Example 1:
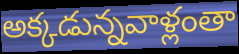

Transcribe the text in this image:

అక్కడున్నవాళ్లంతా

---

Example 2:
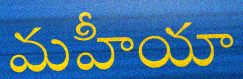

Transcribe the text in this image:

మహీయా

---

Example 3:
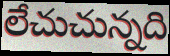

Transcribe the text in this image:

లేచుచున్నది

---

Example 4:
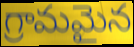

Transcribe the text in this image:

గ్రామమైన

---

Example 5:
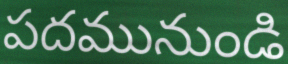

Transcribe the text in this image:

పదమునుండి